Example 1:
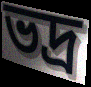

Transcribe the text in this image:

ভদ্ৰ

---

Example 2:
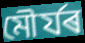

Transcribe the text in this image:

মৌৰ্যৰ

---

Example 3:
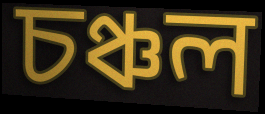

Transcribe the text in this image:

চঞ্চল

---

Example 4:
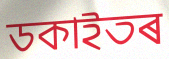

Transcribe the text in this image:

ডকাইতৰ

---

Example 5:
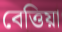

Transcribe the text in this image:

বেত্তিয়া